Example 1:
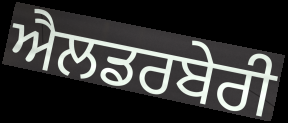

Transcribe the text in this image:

ਐਲਡਰਬੇਰੀ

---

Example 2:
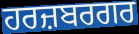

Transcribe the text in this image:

ਹਰਜ਼ਬਰਗਰ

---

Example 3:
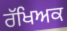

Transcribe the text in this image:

ਰੱਖਿਅਕ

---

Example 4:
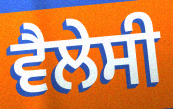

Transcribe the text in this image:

ਵੈਲੇਸੀ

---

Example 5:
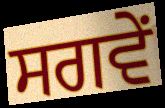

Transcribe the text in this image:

ਸਗਵੇਂ